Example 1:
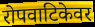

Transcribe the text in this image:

रोपवाटिकेवर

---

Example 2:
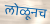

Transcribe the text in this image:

लोळूनच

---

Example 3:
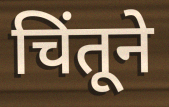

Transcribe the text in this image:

चिंतूने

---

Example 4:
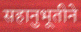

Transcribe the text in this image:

सहानुभूतीने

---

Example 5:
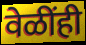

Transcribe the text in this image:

वेळींही